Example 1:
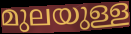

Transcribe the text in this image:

മുലയുള്ള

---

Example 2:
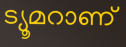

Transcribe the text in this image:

ട്യൂമറാണ്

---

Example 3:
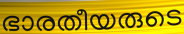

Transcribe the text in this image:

ഭാരതീയരുടെ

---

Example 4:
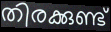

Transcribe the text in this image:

തിരക്കുണ്ട്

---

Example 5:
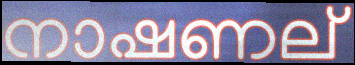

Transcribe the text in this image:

നാഷണല്